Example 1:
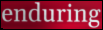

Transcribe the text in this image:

enduring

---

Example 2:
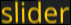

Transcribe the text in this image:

slider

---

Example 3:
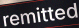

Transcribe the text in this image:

remitted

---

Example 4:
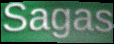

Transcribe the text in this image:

Sagas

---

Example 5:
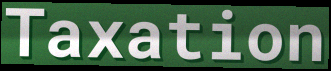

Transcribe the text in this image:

Taxation